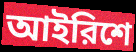
আইরিশে